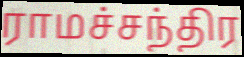
ராமச்சந்திர